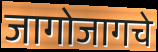
जागोजागचे